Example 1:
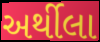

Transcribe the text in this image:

અર્થીલા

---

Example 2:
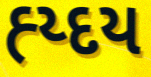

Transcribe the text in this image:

હ્ય્દય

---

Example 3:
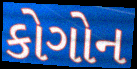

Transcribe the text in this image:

કોગોન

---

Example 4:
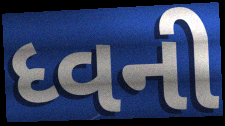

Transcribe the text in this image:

ધ્વની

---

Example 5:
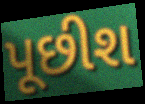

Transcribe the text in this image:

પૂછીશ